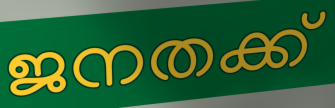
ജനതക്ക്